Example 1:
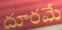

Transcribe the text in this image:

దూరమే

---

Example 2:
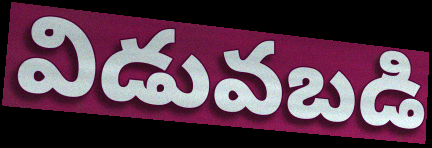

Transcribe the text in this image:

విడువబడి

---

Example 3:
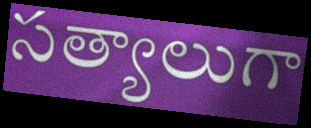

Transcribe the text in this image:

సత్యాలుగా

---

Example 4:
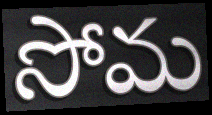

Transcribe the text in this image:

సోమ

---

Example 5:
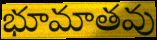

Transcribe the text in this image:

భూమాతవు